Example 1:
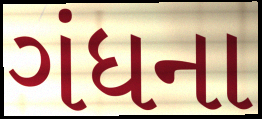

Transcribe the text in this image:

ગંધના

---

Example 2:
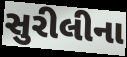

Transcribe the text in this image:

સુરીલીના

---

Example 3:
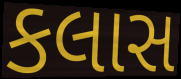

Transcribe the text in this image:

કલાસ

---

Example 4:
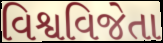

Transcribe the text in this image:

વિશ્વવિજેતા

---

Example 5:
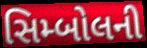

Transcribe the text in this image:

સિમ્બોલની